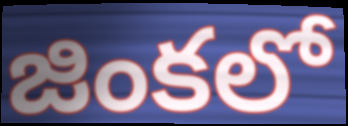
జింకలో